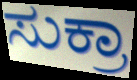
ಸುಕ್ರಾ